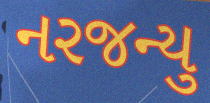
નરજન્યુ